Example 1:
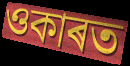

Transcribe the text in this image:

ওকাৰত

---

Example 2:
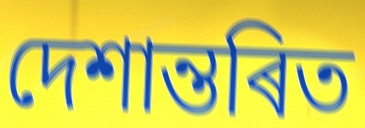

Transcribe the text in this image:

দেশান্তৰিত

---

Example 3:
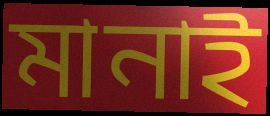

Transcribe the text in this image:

মানাই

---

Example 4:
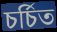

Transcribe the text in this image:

চৰ্চিত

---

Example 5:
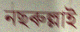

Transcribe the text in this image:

নছৰুল্লাই